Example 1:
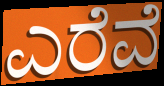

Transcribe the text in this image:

ಎರೆವೆ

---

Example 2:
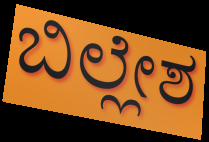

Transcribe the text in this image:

ಬಿಲ್ಲೇಶ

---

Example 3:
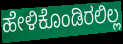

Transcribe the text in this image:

ಹೇಳಿಕೊಂಡಿರಲಿಲ್ಲ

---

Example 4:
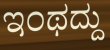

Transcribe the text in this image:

ಇಂಥದ್ದು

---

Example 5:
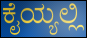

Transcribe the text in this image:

ಕೈಯ್ಯಲ್ಲಿ